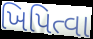
ખિપિત્વા